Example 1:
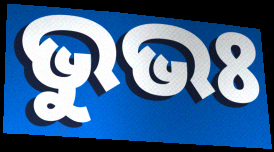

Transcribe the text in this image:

ଭୁଭଃ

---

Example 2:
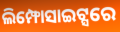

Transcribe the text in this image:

ଲିମ୍ଫୋସାଇଟ୍ସରେ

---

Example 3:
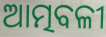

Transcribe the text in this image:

ଆତ୍ମବଳୀ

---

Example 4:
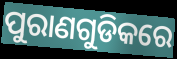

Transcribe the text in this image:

ପୁରାଣଗୁଡିକରେ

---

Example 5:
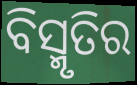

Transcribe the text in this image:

ବିସ୍ମୃତିର